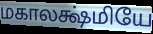
மகாலக்ஷ்மியே